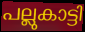
പല്ലുകാട്ടി